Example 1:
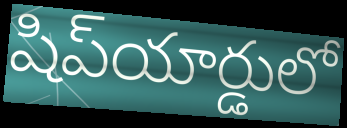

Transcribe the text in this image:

షిప్‌యార్డులో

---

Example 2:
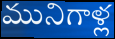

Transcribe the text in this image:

మునిగాళ్ల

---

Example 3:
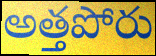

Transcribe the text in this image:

అత్తపోరు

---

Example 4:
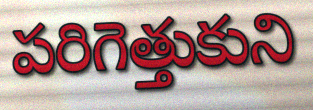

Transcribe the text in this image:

పరిగెత్తుకుని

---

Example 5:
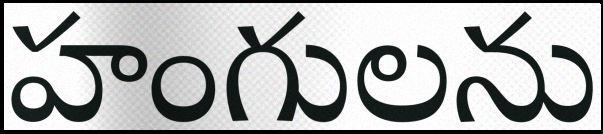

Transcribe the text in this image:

హంగులను